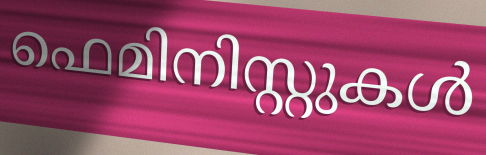
ഫെമിനിസ്റ്റുകൾ